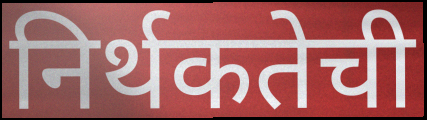
निर्थकतेची